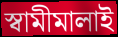
স্বামীমালাই